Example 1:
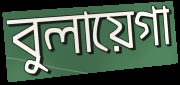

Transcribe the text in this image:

বুলায়েগা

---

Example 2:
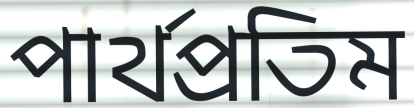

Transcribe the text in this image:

পার্থপ্রতিম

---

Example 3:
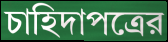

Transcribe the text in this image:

চাহিদাপত্রের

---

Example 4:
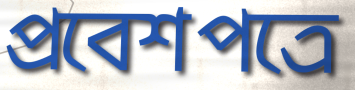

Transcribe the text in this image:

প্রবেশপত্রে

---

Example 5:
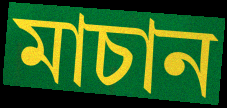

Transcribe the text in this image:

মাচান